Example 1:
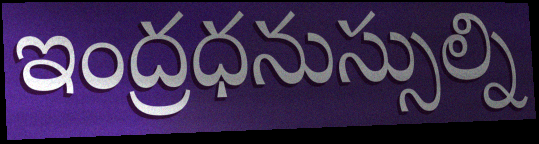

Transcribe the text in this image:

ఇంద్రధనుస్సుల్ని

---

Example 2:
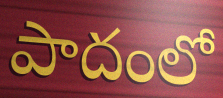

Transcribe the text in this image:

పాదంలో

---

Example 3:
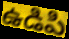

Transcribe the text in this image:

ఉడిపి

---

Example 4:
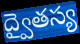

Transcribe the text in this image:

ద్వైతస్య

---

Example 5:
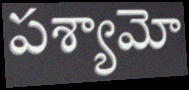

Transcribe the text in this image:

పశ్యామో